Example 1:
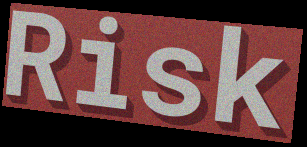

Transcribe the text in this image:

Risk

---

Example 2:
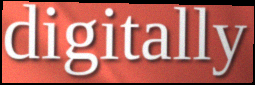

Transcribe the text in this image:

digitally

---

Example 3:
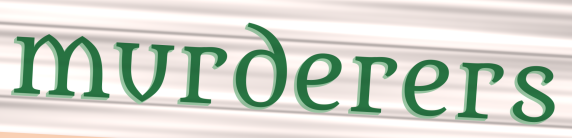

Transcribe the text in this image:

murderers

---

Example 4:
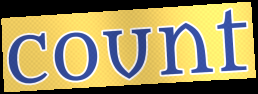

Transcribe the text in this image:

count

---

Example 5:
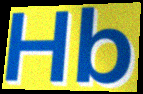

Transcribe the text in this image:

Hb